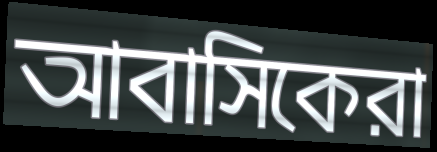
আবাসিকেরা